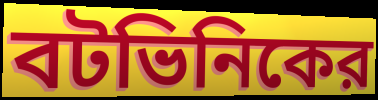
বটভিনিকের